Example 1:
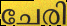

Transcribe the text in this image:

ചേരി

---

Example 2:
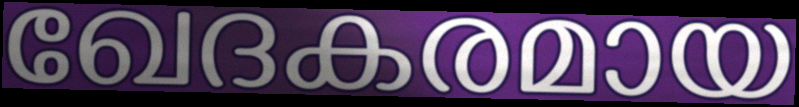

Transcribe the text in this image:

ഖേദകരമായ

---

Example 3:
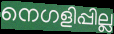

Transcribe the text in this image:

നെഗളിപ്പില്ല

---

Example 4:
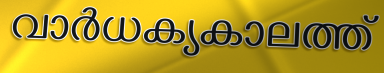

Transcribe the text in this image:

വാർധക്യകാലത്ത്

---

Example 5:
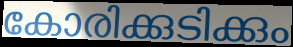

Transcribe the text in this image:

കോരിക്കുടിക്കും